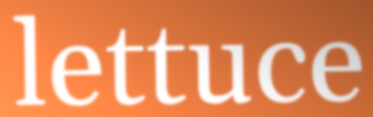
lettuce